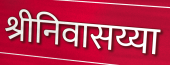
श्रीनिवासय्या